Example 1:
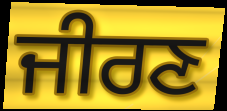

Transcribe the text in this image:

ਜੀਰਣ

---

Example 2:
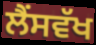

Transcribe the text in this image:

ਲੈਂਸਵੱਖ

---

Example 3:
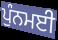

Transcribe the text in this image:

ਪੁੰਨਮਈ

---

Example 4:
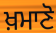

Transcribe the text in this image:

ਖ਼ਮਾਣੋ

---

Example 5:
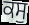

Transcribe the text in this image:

ਕਸੁ